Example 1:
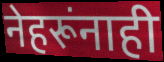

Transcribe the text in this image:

नेहरूंनाही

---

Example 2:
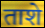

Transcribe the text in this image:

ताशे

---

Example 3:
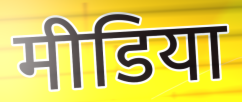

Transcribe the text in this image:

मीडिया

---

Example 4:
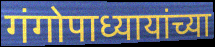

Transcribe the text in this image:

गंगोपाध्यायांच्या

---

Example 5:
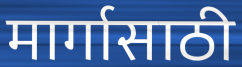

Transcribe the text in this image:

मार्गासाठी